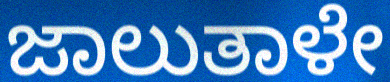
ಜಾಲುತಾಳೇ